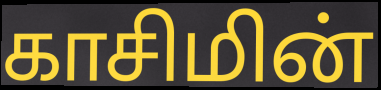
காசிமின்